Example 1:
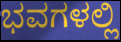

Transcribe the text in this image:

ಭವಗಳಲ್ಲಿ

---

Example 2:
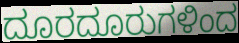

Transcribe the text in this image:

ದೂರದೂರುಗಳಿಂದ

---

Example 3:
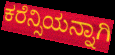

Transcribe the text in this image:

ಕರೆನ್ಸಿಯನ್ನಾಗಿ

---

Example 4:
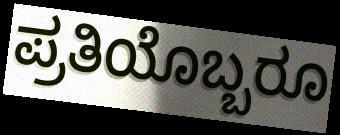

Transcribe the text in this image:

ಪ್ರತಿಯೊಬ್ಬರೂ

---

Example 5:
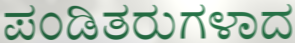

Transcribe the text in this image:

ಪಂಡಿತರುಗಳಾದ